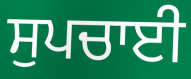
ਸੁਪਚਾਈ